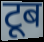
टूब